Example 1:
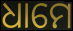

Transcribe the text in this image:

ଧାମେ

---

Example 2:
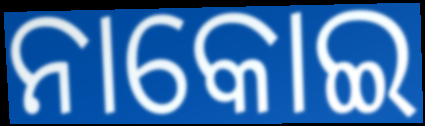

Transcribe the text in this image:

ନାକୋଇ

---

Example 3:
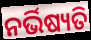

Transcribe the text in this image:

ନର୍ଭିଷ୍ୟତି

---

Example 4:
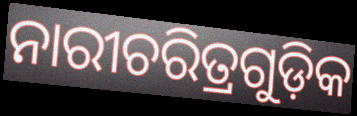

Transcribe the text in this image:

ନାରୀଚରିତ୍ରଗୁଡ଼ିକ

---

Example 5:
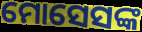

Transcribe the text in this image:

ମୋସେସଙ୍କ